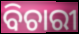
ବିଚାରୀ